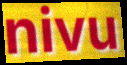
nivu